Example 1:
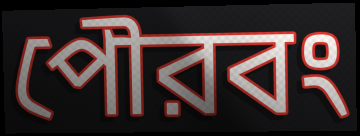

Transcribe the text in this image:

পৌরবং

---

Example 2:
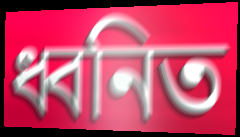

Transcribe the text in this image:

ধ্বনিত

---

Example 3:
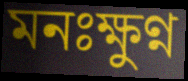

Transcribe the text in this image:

মনঃক্ষুণ্ন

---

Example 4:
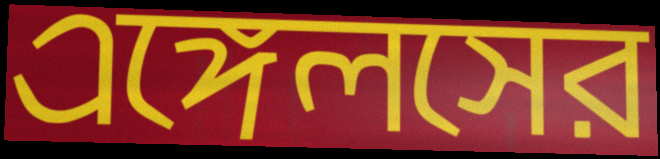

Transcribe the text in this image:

এঙ্গেলসের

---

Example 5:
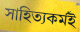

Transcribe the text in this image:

সাহিত্যকর্মই